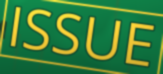
ISSUE